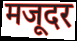
मजूदर